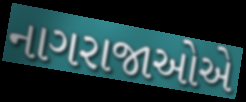
નાગરાજાઓએ